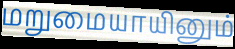
மறுமையாயினும்